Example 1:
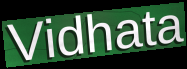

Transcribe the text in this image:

Vidhata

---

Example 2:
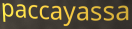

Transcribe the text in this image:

paccayassa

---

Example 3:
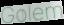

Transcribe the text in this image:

Golem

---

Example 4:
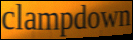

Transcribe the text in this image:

clampdown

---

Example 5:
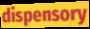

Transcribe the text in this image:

dispensory